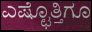
ಎಷ್ಟೊತ್ತಿಗೂ